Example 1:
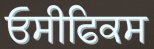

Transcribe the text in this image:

ਓਸੀਫਿਕਸ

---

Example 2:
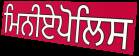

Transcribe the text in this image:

ਮਿਨੀਏਪੋਲਿਸ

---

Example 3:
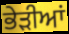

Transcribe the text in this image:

ਭੇੜੀਆਂ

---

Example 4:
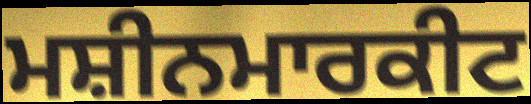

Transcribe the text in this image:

ਮਸ਼ੀਨਮਾਰਕੀਟ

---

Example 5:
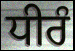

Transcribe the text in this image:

ਧੀਰੰ